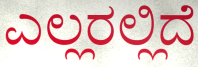
ಎಲ್ಲರಲ್ಲಿದೆ